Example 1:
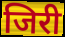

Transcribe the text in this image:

जिरी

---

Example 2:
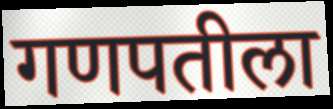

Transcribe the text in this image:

गणपतीला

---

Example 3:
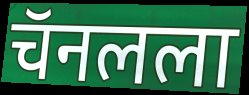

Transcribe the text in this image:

चॅनलला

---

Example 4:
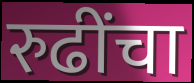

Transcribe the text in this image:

रुढींचा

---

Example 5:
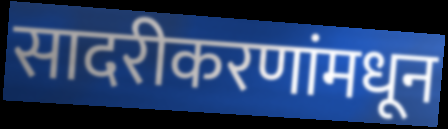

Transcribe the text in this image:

सादरीकरणांमधून